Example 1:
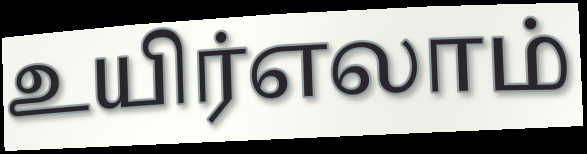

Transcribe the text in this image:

உயிர்எலாம்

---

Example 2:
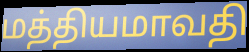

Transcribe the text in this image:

மத்தியமாவதி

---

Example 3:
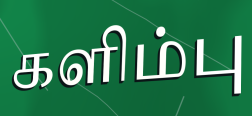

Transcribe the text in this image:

களிம்பு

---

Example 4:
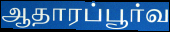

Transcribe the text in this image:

ஆதாரப்பூர்வ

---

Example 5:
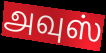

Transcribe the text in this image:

அவுஸ்